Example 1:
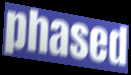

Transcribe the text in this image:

phased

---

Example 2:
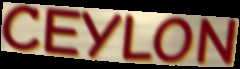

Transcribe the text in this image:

CEYLON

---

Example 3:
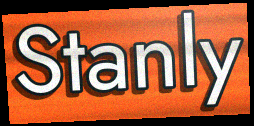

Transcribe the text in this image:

Stanly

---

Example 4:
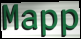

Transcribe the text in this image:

Mapp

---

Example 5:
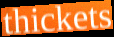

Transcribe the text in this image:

thickets